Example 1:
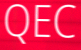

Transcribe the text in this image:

QEC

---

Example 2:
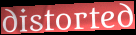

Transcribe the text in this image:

distorted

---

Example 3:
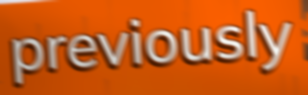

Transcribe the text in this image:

previously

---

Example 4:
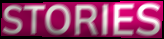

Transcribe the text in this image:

STORIES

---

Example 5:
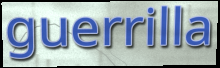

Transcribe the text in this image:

guerrilla